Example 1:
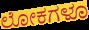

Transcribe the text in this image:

ಲೋಕಗಳೂ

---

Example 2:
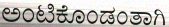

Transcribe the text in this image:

ಅಂಟಿಕೊಂಡಂತಾಗಿ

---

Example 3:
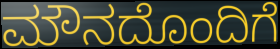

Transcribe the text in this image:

ಮೌನದೊಂದಿಗೆ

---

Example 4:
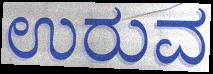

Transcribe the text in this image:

ಉರುವ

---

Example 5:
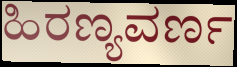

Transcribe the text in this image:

ಹಿರಣ್ಯವರ್ಣ